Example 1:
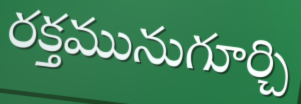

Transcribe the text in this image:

రక్తమునుగూర్చి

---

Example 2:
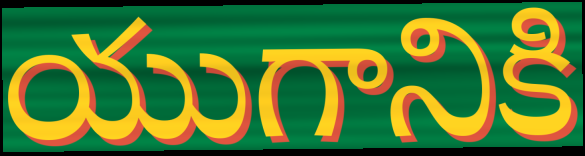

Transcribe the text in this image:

యుగానికి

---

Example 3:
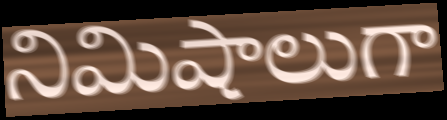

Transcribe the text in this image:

నిమిషాలుగా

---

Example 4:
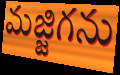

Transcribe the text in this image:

మజ్జిగను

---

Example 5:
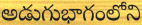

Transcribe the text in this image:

అడుగుభాగంలోని